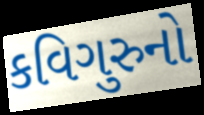
કવિગુરુનો